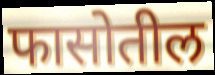
फासोतील